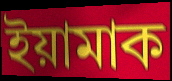
ইয়ামাক